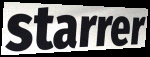
starrer